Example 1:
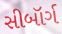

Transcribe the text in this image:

સીબૉર્ગ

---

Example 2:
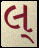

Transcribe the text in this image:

લ્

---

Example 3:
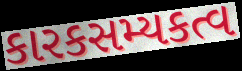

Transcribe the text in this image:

કારકસમ્યકત્વ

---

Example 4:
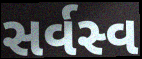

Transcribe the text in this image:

સર્વસ્વ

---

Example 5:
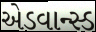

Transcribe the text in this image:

એડવાન્સ્ડ